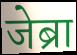
जेब्रा